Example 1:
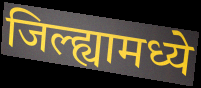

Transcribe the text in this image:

जिल्ह्यामध्ये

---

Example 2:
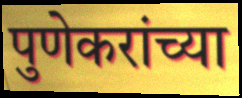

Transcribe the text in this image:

पुणेकरांच्या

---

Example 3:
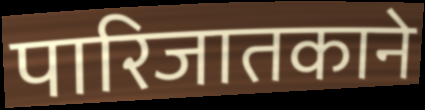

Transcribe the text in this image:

पारिजातकाने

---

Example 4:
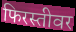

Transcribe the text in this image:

फिरस्तीवर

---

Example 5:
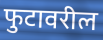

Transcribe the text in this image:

फुटावरील